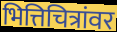
भित्तिचित्रांवर